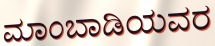
ಮಾಂಬಾಡಿಯವರ